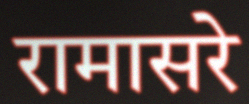
रामासरे